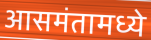
आसमंतामध्ये